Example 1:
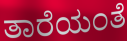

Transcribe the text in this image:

ತಾರೆಯಂತೆ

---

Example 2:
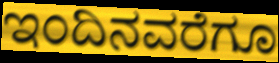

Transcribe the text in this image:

ಇಂದಿನವರೆಗೂ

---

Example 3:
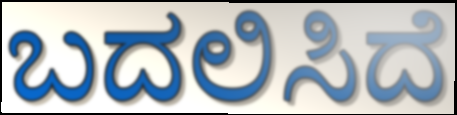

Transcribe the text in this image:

ಬದಲಿಸಿದೆ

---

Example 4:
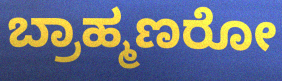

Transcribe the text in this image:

ಬ್ರಾಹ್ಮಣರೋ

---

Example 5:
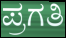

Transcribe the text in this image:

ಪ್ರಗತಿ